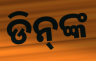
ଡିନ୍‌ଙ୍କ